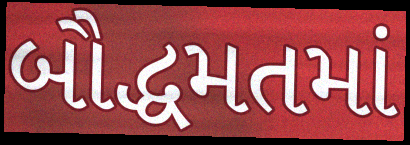
બૌદ્ધમતમાં